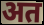
अत